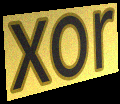
xor